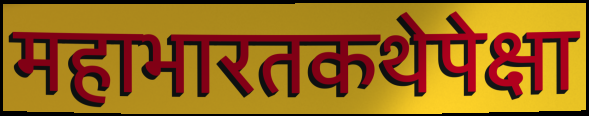
महाभारतकथेपेक्षा